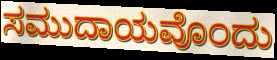
ಸಮುದಾಯವೊಂದು